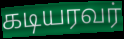
கடியரவர்